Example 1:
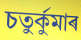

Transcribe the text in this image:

চতুৰ্কুমাৰ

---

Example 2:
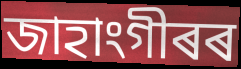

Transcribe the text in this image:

জাহাংগীৰৰ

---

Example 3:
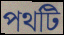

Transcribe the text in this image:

পথটি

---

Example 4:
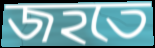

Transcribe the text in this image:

জহতে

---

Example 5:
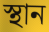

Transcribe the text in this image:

স্থান